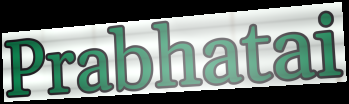
Prabhatai